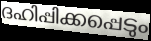
ദഹിപ്പിക്കപ്പെടും